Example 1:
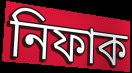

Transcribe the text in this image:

নিফাক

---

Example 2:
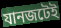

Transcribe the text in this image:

যানজটেই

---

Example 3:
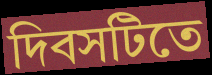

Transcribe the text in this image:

দিবসটিতে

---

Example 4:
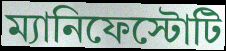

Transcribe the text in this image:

ম্যানিফেস্টোটি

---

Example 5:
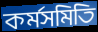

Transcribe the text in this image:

কর্মসমিতি